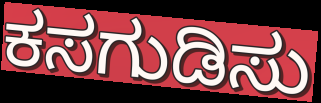
ಕಸಗುಡಿಸು